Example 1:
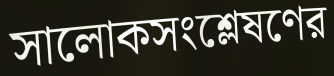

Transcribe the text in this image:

সালোকসংশ্লেষণের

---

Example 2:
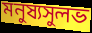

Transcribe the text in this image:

মনুষ্যসুলভ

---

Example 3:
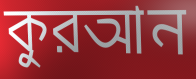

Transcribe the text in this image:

কুরআন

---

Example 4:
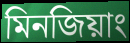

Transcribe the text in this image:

মিনজিয়াং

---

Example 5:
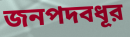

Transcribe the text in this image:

জনপদবধূর